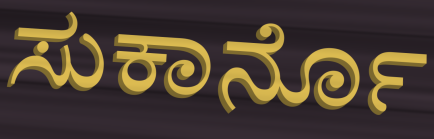
ಸುಕಾರ್ನೊ